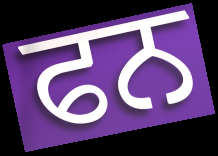
ਫਨ